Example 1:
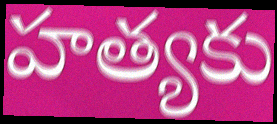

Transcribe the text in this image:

హత్యకు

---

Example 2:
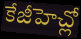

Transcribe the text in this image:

కేజీహెచ్లో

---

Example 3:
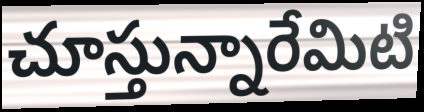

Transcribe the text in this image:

చూస్తున్నారేమిటి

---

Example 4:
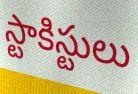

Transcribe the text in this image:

స్టాకిస్టులు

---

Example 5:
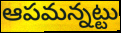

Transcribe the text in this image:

ఆపమన్నట్టు